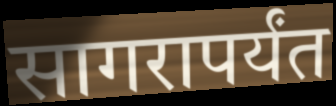
सागरापर्यंत